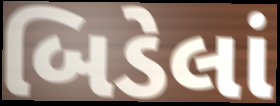
બિડેલાં